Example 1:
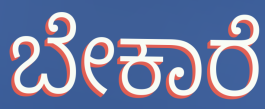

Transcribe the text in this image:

ಬೇಕಾರೆ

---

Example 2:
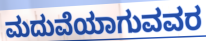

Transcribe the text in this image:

ಮದುವೆಯಾಗುವವರ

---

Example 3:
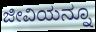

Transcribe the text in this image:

ಜೀವಿಯನ್ನೂ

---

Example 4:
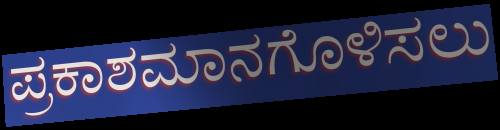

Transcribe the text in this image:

ಪ್ರಕಾಶಮಾನಗೊಳಿಸಲು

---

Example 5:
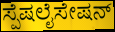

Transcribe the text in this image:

ಸ್ಪೆಷಲೈಸೇಷನ್